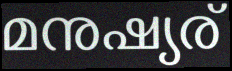
മനുഷ്യര്